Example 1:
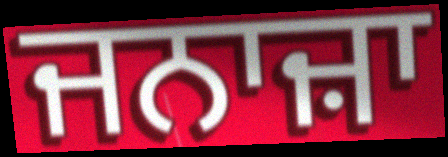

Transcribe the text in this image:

ਜਨਾਜ਼ਾ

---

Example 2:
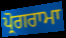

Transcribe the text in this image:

ਪ੍ਰੋਗਰਾਮਾ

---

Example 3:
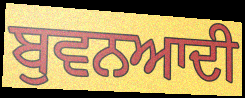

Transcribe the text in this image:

ਬੁਵਨਆਦੀ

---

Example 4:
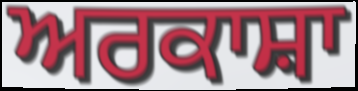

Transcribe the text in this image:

ਅਰਕਾਸ਼ਾ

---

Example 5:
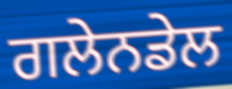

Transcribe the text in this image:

ਗਲੇਨਡੇਲ